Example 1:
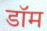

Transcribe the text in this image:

डॉम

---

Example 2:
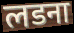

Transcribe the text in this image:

लडना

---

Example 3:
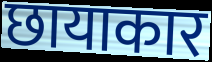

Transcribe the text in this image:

छायाकार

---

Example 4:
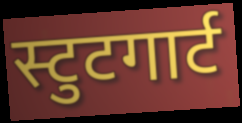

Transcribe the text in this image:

स्टुटगार्ट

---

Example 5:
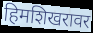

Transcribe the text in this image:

हिमशिखरावर